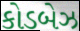
કોડબેઝ